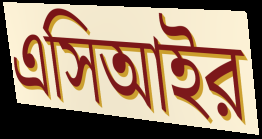
এসিআইর